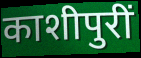
काशीपुरीं